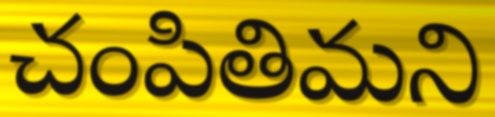
చంపితిమని